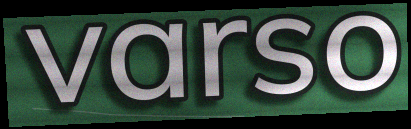
varso